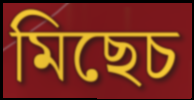
মিছেচ